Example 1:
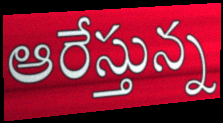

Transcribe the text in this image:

ఆరేస్తున్న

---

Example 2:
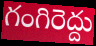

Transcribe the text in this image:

గంగిరెద్దు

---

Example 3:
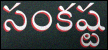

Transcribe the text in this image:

సంకష్ట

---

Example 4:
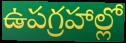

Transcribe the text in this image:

ఉపగ్రహాల్లో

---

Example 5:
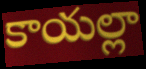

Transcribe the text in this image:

కాయల్లా